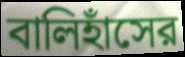
বালিহাঁসের